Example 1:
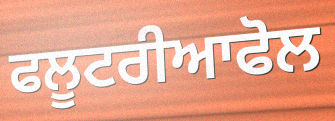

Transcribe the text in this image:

ਫਲੂਟਰੀਆਫੋਲ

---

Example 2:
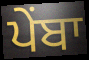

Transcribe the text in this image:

ਪੇਂਬਾ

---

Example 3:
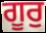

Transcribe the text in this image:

ਗੂਰੁ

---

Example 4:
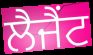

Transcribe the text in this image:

ਲੈਜੈਂਟ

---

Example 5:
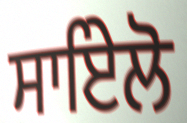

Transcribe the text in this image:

ਸਾਇੇਲੋ